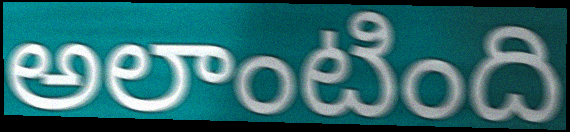
అలాంటింది